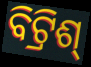
ବିଟ୍ରିଶ୍